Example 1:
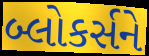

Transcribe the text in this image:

બ્લોકર્સને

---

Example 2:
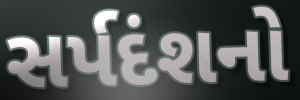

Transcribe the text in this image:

સર્પદંશનો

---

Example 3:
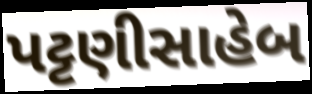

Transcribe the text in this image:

પટ્ટણીસાહેબ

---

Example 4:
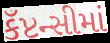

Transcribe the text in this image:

કૅપ્ટન્સીમાં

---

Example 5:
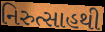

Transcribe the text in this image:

નિરુત્સાહથી